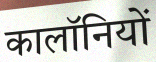
कालॉनियों